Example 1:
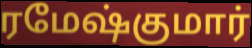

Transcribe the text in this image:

ரமேஷ்குமார்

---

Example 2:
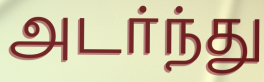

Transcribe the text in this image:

அடர்ந்து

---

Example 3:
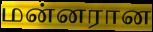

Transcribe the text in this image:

மன்னரான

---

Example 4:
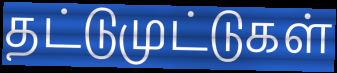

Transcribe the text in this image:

தட்டுமுட்டுகள்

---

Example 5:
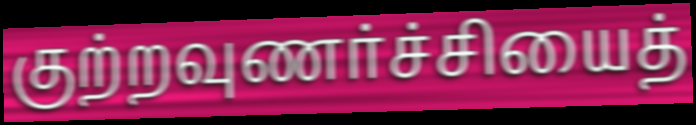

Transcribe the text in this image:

குற்றவுணர்ச்சியைத்